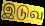
இடுவ